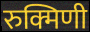
रुक्मिणी